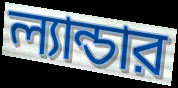
ল্যান্ডার